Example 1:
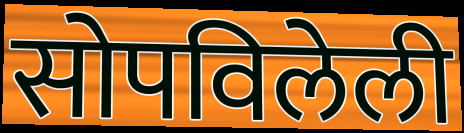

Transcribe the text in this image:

सोपविलेली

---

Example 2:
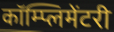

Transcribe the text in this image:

कॉम्प्लिमेंटरी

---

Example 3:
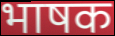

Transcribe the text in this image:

भाषक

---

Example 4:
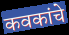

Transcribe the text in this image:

कवकांचे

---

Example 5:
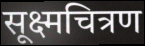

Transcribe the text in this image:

सूक्ष्मचित्रण